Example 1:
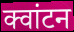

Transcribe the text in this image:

क्वांटन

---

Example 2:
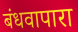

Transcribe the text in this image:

बंधवापारा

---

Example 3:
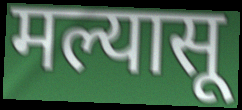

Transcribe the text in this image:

मल्यासू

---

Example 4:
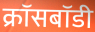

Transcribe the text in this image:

क्रॉसबॉडी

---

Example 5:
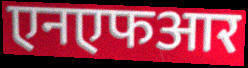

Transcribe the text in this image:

एनएफआर